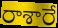
రాశారే